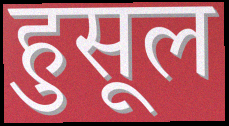
हुसूल